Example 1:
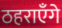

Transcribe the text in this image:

ठहराएँगे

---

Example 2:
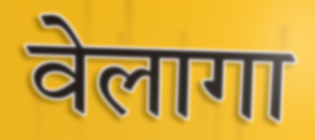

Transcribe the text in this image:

वेलागा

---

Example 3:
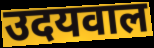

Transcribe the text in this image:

उदयवाल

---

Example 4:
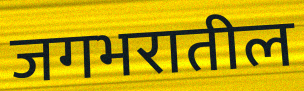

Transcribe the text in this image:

जगभरातील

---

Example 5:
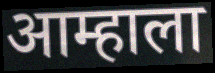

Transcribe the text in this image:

आम्हाला